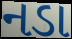
નડા